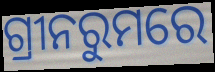
ଗ୍ରୀନରୁମରେ